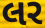
લર